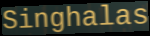
Singhalas